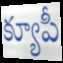
క్యూపీ